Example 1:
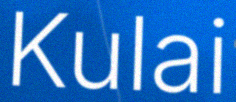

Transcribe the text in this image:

Kulai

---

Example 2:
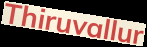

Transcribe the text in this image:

Thiruvallur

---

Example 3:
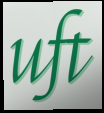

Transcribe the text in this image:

uft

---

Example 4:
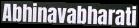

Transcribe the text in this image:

Abhinavabharati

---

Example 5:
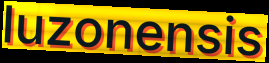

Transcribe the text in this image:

luzonensis